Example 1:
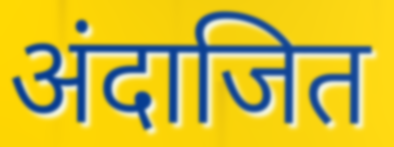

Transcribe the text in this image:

अंदाजित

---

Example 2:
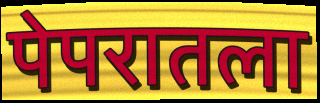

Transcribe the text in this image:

पेपरातला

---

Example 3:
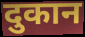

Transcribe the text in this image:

दुकान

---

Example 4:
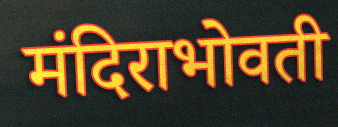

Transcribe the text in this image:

मंदिराभोवती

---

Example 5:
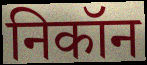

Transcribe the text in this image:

निकॉन